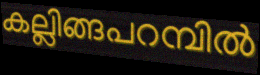
കല്ലിങ്ങപറമ്പിൽ